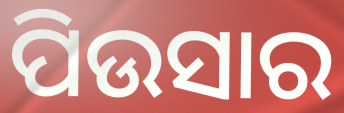
ପିଉସାର